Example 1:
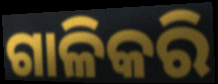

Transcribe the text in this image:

ଗାଳିକରି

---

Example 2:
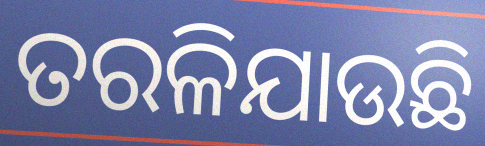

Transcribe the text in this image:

ତରଳିଯାଉଛି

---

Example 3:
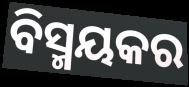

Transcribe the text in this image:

ବିସ୍ମୟକର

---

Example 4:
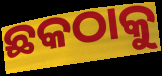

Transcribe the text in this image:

ଛକଠାକୁ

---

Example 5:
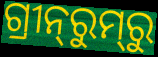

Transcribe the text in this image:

ଗ୍ରୀନ୍‌ରୁମ୍‌ରୁ